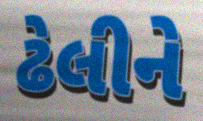
ઢેલીને